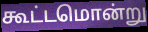
கூட்டமொன்று